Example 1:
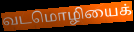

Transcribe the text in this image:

வடமொழியைக்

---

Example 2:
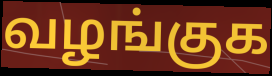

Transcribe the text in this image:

வழங்குக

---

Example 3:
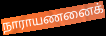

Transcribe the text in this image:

நாராயணனைக்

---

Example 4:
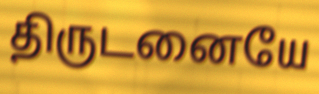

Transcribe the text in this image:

திருடனையே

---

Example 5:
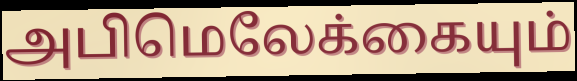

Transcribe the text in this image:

அபிமெலேக்கையும்